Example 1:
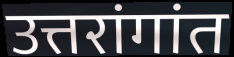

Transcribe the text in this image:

उत्तरांगांत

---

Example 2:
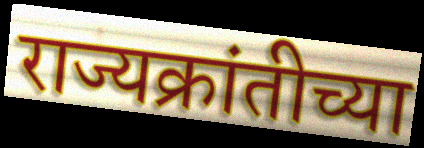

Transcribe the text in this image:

राज्यक्रांतीच्या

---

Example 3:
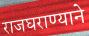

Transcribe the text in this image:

राजघराण्याने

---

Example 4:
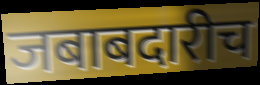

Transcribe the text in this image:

जबाबदारीच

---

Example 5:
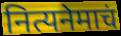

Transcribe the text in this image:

नित्यनेमाचं